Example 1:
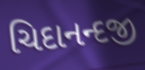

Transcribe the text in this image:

ચિદાનન્દજી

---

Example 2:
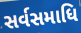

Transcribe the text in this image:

સર્વસમાધિ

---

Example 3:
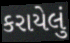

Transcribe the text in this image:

કરાયેલું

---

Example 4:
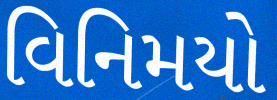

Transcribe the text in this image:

વિનિમયો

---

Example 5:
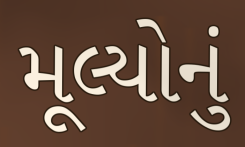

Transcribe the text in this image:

મૂલ્યોનું